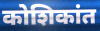
कोशिकांत